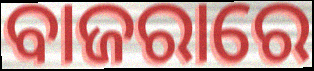
ବାଜରାରେ